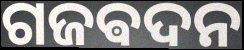
ଗଜଵଦନ